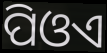
ପିଓଏ